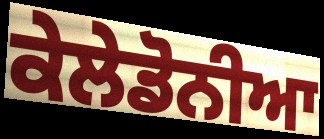
ਕੇਲੇਡੋਨੀਆ